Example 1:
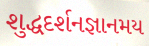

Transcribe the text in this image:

શુદ્ધદર્શનજ્ઞાનમય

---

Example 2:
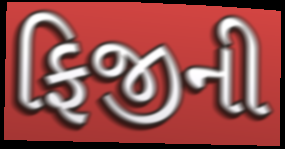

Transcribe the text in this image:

ફિજીની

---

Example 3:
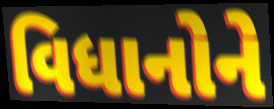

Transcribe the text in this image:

વિધાનોને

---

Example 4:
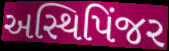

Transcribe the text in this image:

અસ્થિપિંજર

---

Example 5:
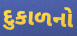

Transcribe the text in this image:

દુકાળનો